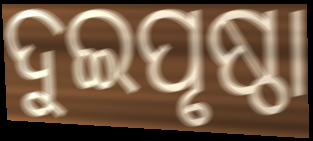
ଦୁଇପୃଷ୍ଠା